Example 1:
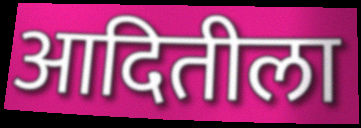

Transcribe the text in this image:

आदितीला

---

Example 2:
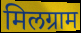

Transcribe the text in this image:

मिलग्राम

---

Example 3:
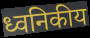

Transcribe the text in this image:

ध्वनिकीय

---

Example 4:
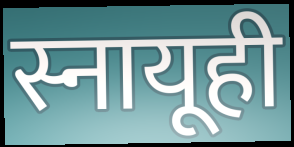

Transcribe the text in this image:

स्नायूही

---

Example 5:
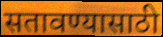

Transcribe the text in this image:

सतावण्यासाठी